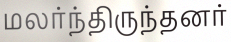
மலர்ந்திருந்தனர்